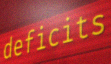
deficits